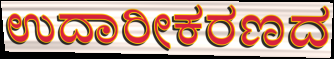
ಉದಾರೀಕರಣದ